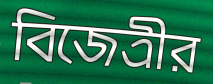
বিজেত্রীর